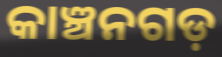
କାଞ୍ଚନଗଡ଼